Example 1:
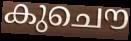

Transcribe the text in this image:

കുചൌ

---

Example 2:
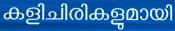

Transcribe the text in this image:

കളിചിരികളുമായി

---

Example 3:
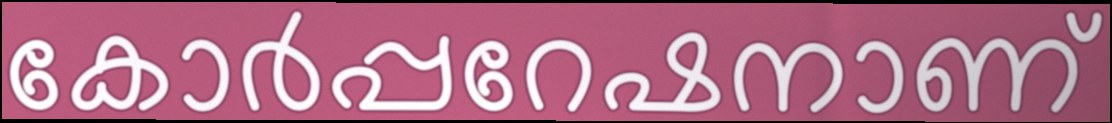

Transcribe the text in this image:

കോർപ്പറേഷനാണ്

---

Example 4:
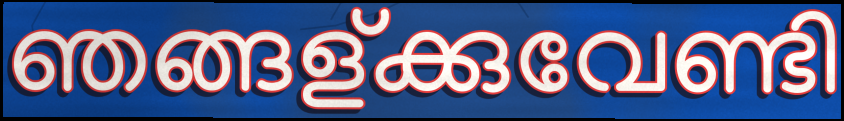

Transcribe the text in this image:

ഞങ്ങള്ക്കുവേണ്ടി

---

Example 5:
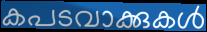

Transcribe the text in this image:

കപടവാക്കുകൾ